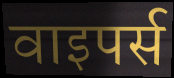
वाइपर्स